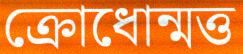
ক্রোধোন্মত্ত